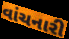
વાંચનારી